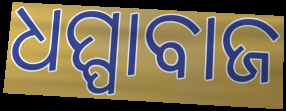
ଧପ୍ପାବାଜ